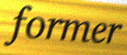
former